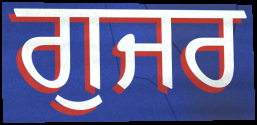
ਗੁਜਰ